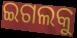
ଇଗଲକୁ